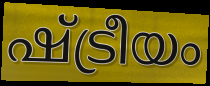
ഷ്ട്രീയം